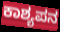
ಕಾಶ್ಯಪನ